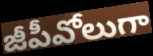
జీపీవోలుగా